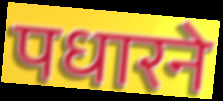
पधारने